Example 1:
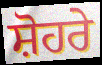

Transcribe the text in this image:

ਸ਼ੋਹਰੇ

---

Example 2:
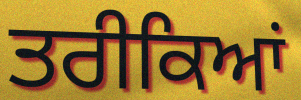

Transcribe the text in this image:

ਤਰੀਕਿਆਂ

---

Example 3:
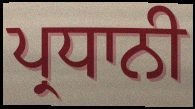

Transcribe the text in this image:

ਪ੍ਰਧਾਨੀ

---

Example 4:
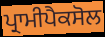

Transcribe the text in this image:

ਪ੍ਰਾਮੀਪੈਕਸੋਲ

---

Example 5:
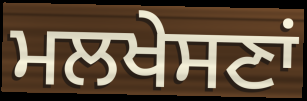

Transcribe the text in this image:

ਮਲਖੇਸਣਾਂ